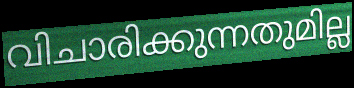
വിചാരിക്കുന്നതുമില്ല